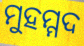
ମୁହମ୍ମଦ